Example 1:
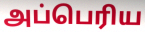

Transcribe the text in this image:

அப்பெரிய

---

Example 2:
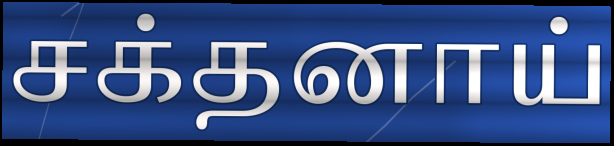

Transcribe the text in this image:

சக்தனாய்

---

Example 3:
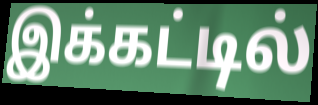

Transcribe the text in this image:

இக்கட்டில்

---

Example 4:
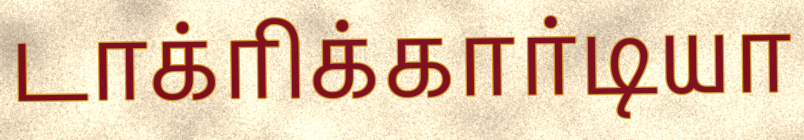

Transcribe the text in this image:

டாக்ரிக்கார்டியா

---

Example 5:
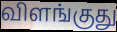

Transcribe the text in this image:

விளங்குது